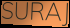
SURAJ